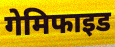
गेमिफाइड